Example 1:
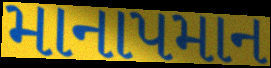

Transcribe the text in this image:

માનાપમાન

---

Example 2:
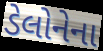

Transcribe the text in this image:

ડેલોનેના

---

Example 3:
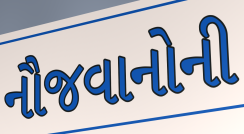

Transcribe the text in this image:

નૌજવાનોની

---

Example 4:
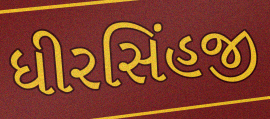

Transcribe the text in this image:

ધીરસિંહજી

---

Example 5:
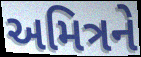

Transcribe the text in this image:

અમિત્રને